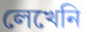
লেখেনি